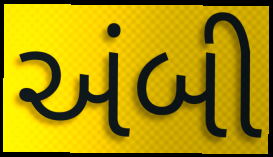
અંબી